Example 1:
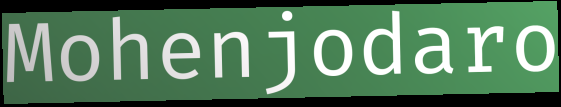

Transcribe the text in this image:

Mohenjodaro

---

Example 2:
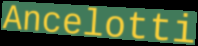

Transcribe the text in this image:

Ancelotti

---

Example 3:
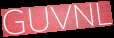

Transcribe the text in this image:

GUVNL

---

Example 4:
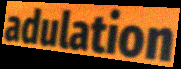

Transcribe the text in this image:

adulation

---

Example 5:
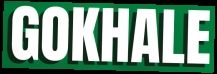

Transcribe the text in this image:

GOKHALE